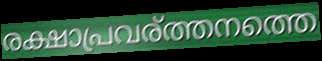
രക്ഷാപ്രവര്ത്തനത്തെ